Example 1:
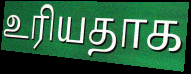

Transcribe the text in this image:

உரியதாக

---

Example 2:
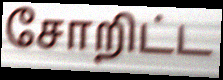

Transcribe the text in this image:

சோறிட்ட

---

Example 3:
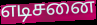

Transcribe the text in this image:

எடிசனை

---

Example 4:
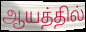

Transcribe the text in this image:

ஆயத்தில்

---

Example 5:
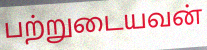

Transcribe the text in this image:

பற்றுடையவன்